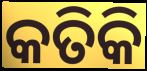
କତିକି